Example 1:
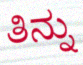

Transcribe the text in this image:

ತಿನ್ನು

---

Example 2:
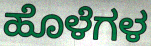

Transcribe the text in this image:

ಹೊಳೆಗಳ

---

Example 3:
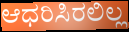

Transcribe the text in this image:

ಆಧರಿಸಿರಲಿಲ್ಲ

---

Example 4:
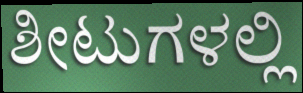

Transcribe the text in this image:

ಶೀಟುಗಳಲ್ಲಿ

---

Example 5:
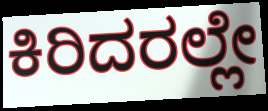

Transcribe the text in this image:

ಕಿರಿದರಲ್ಲೇ